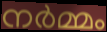
നർമ്മം